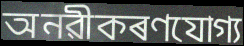
অনৱীকৰণযোগ্য